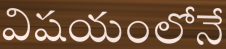
విషయంలోనే